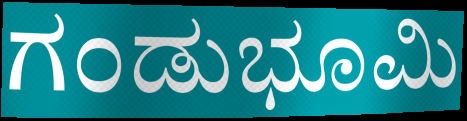
ಗಂಡುಭೂಮಿ